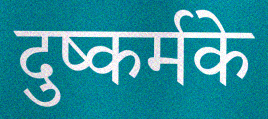
दुष्कर्मके